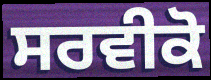
ਸਰਵੀਕੋ